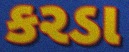
કરડા